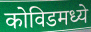
कोविडमध्ये